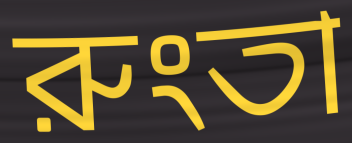
রুংতা